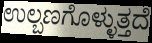
ಉಲ್ಬಣಗೊಳ್ಳುತ್ತದೆ